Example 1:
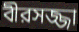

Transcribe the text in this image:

বীরসজ্জা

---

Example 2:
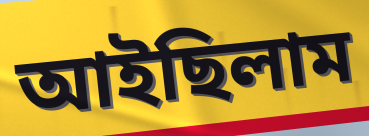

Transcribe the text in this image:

আইছিলাম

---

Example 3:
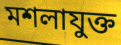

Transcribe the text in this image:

মশলাযুক্ত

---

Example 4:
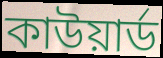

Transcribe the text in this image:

কাউয়ার্ড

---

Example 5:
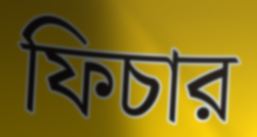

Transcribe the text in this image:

ফিচার